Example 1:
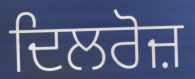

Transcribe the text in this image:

ਦਿਲਰੋਜ਼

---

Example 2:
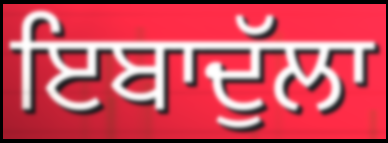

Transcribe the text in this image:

ਇਬਾਦੁੱਲਾ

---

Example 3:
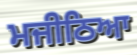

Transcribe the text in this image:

ਮਜੀਠਿਆ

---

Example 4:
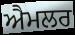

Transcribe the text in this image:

ਐਮਲਰ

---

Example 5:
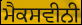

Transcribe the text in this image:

ਮੈਕਸਵੀਨੀ